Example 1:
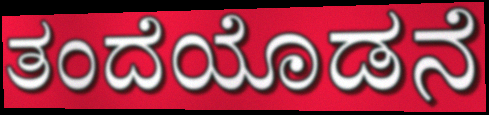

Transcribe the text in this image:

ತಂದೆಯೊಡನೆ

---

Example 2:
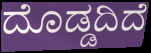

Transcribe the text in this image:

ದೊಡ್ಡದಿದೆ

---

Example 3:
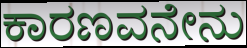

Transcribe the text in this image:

ಕಾರಣವನೇನು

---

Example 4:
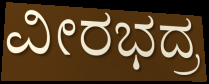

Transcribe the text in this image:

ವೀರಭದ್ರ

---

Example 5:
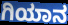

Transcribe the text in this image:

ಗಿಯಾನ